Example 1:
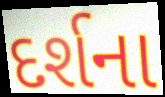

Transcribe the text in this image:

દર્શના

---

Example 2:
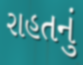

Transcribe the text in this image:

રાહતનું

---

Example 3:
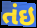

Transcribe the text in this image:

તંઇ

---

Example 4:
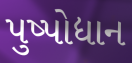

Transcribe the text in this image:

પુષ્પોદ્યાન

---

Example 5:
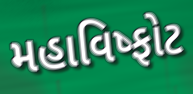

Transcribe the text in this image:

મહાવિષ્ફોટ